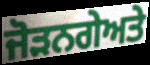
ਜੋੜਨਗੇਅਤੇ